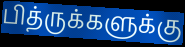
பித்ருக்களுக்கு